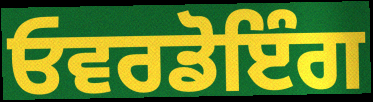
ਓਵਰਡੋਇੰਗ